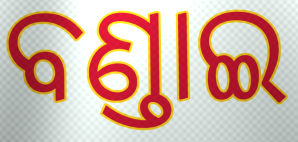
ବଣ୍ଡାଇ